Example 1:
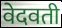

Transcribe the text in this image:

वेदवती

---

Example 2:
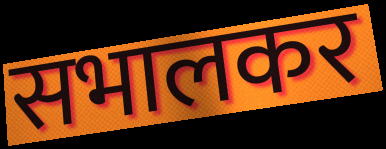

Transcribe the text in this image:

सभालकर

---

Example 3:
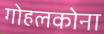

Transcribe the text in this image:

गोहलकोना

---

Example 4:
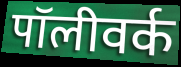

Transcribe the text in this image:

पॉलीवर्क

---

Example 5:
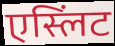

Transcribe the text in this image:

एस्लिंट